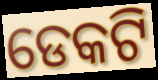
ଡେକଟି